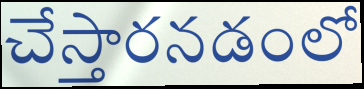
చేస్తారనడంలో